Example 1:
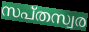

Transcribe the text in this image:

സപ്തസ്വര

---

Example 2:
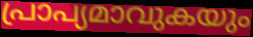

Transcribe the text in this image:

പ്രാപ്യമാവുകയും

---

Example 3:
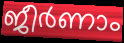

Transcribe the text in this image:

ജീർണാം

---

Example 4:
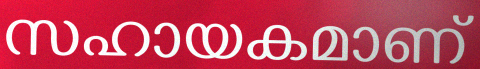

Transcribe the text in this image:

സഹായകമാണ്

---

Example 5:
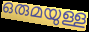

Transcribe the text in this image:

ഒരുമയുള്ള